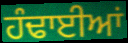
ਹੰਢਾਈਆਂ